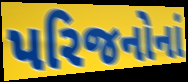
પરિજનોનાં